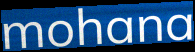
mohana